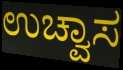
ಉಚ್ವಾಸ